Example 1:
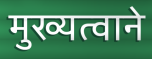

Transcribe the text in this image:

मुख्यत्वाने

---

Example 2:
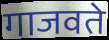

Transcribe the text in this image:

गाजवते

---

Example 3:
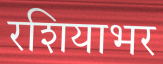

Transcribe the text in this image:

रशियाभर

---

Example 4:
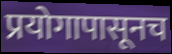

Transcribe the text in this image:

प्रयोगापासूनच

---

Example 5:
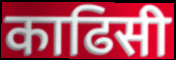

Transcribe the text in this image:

काढिसी